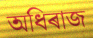
অধিৰাজ